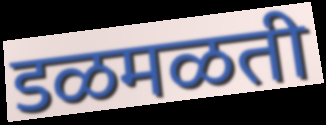
डळमळती